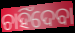
ଚାହିଁଦେବା